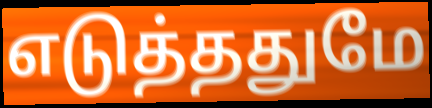
எடுத்ததுமே